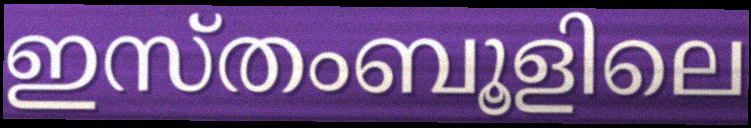
ഇസ്തംബൂളിലെ